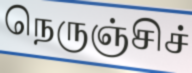
நெருஞ்சிச்